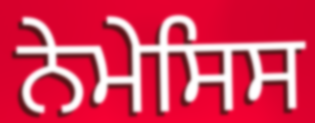
ਨੇਮੇਸਿਸ